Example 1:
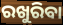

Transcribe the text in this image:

ରଖୁରିବା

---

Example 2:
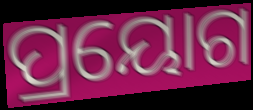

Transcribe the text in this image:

ପ୍ରୟୋଗ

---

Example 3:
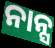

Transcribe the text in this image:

ନାନ୍ସ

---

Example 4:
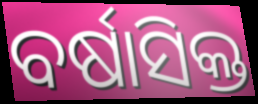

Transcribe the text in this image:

ବର୍ଷାସିକ୍ତ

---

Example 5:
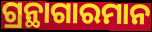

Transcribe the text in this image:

ଗ୍ରନ୍ଥାଗାରମାନ